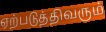
ஏற்படுத்திவரும்